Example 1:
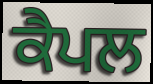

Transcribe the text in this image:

ਕੈਪਲ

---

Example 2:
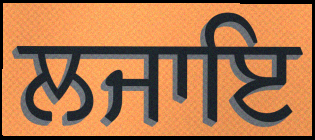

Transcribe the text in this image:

ਲਜਾਇ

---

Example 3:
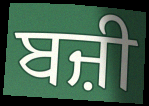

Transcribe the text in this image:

ਬਜ਼ੀ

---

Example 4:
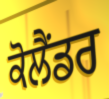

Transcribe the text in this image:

ਕੋਲੈਂਡਰ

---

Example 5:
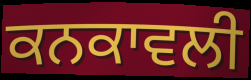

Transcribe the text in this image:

ਕਨਕਾਵਲੀ